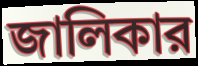
জালিকার